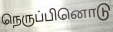
நெருப்பினொடு